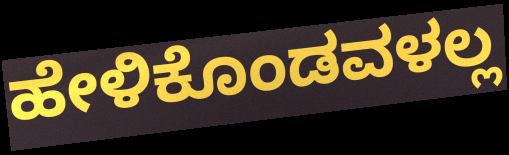
ಹೇಳಿಕೊಂಡವಳಲ್ಲ